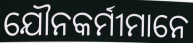
ଯୌନକର୍ମୀମାନେ